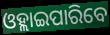
ଓହ୍ଲାଇପାରିବେ